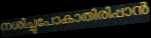
നശിച്ചുപോകാതിരിപ്പാൻ